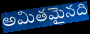
అమితమైనది